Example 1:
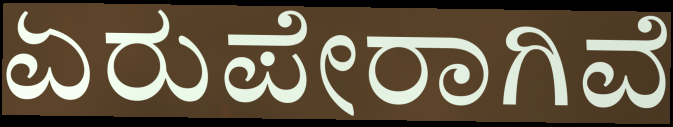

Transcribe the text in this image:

ಏರುಪೇರಾಗಿವೆ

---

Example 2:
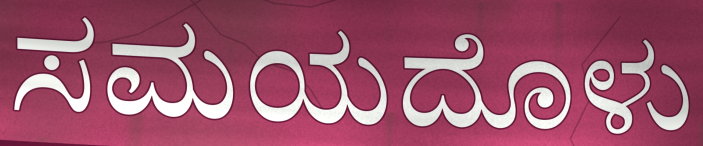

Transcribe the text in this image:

ಸಮಯದೊಳು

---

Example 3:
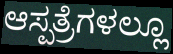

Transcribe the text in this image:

ಆಸ್ಪತ್ರೆಗಳಲ್ಲೂ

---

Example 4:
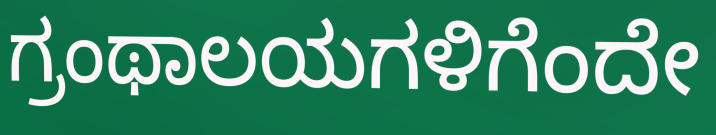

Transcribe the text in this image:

ಗ್ರಂಥಾಲಯಗಳಿಗೆಂದೇ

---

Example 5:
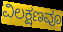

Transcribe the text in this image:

ವಿಲಕ್ಷಣವೂ